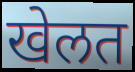
खेलत